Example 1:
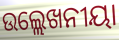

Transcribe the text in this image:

ଉଲ୍ଲେଖନୀୟା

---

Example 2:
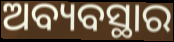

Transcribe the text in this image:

ଅବ୍ୟବସ୍ଥାର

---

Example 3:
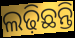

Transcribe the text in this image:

ଲଢ଼ିଛନ୍ତି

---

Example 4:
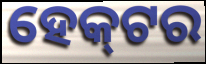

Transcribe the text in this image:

ହେକ୍‌ଟର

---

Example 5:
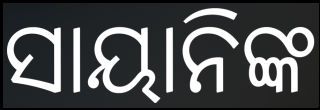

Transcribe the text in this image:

ସାୟାନିଙ୍କ